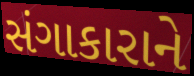
સંગાકારાને